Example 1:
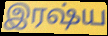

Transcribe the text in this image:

இரஷ்ய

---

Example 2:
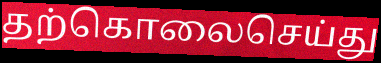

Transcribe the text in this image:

தற்கொலைசெய்து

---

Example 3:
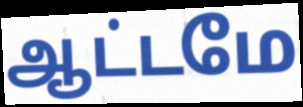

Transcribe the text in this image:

ஆட்டமே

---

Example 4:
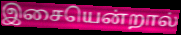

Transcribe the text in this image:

இசையென்றால்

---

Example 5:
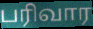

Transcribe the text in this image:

பரிவார